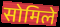
सोमिले